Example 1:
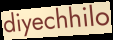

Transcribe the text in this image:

diyechhilo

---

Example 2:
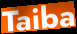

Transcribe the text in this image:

Taiba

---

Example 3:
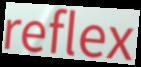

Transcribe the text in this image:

reflex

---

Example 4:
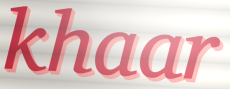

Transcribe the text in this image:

khaar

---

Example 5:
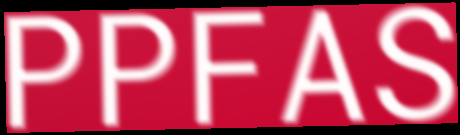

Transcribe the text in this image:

PPFAS